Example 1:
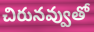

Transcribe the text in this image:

చిరునవ్వుతో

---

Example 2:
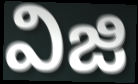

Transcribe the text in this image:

విజి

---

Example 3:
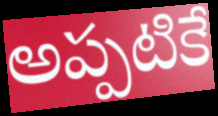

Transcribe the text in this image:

అప్పటికే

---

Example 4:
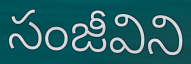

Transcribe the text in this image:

సంజీవిని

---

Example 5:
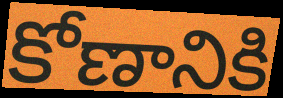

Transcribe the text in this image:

కోణానికి